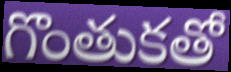
గొంతుకతో